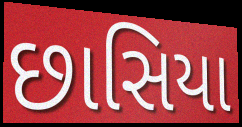
છાસિયા